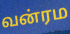
வன்ரம